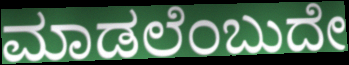
ಮಾಡಲೆಂಬುದೇ